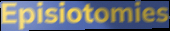
Episiotomies